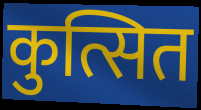
कुत्सित